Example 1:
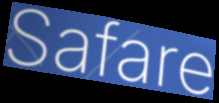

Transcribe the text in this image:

Safare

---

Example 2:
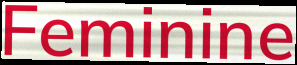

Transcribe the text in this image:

Feminine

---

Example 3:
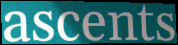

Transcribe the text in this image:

ascents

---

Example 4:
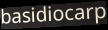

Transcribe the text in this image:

basidiocarp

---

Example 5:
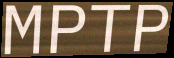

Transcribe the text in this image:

MPTP